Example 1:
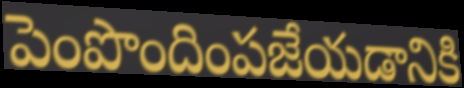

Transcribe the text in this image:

పెంపొందింపజేయడానికి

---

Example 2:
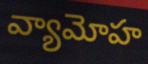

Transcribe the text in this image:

వ్యామోహ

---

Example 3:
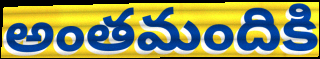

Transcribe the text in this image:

అంతమందికి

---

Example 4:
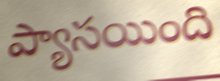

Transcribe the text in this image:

ప్యాసయింది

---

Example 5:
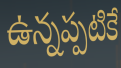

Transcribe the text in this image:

ఉన్నప్పటికే